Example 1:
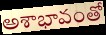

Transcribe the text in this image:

అశాభావంతో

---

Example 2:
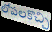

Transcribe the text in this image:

లోపలకొచ్చి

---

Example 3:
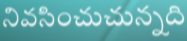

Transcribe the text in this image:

నివసించుచున్నది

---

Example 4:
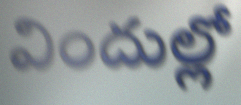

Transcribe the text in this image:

విందుల్లో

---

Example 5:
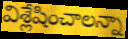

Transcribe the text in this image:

విశ్లేషించాలన్నా